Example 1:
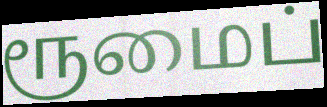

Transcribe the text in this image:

ரூமைப்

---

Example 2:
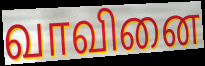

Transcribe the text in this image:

வாவினை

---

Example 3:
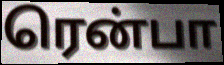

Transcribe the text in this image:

ரென்பா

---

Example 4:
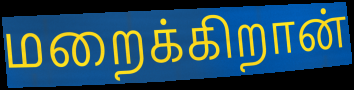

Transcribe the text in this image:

மறைக்கிறான்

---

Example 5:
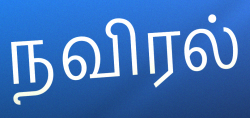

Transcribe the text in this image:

நவிரல்